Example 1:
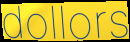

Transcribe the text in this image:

dollors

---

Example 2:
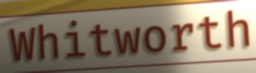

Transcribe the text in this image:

Whitworth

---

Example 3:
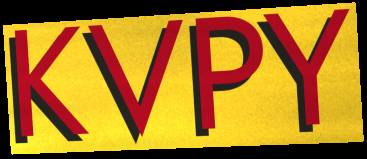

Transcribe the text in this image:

KVPY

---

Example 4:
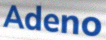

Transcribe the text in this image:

Adeno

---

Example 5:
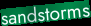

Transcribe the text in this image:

sandstorms